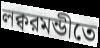
লক্বরমন্ডীতে